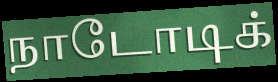
நாடோடிக்